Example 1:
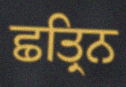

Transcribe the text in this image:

ਛਤ੍ਰਿਨ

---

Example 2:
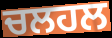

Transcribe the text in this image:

ਚਲਹਲ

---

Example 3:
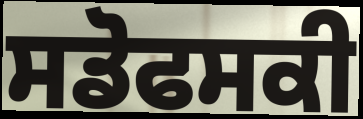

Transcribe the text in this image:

ਸਡੋਫਸਕੀ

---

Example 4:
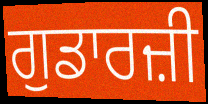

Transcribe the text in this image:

ਗੁਡਾਰਜ਼ੀ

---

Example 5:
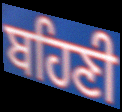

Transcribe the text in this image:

ਬਹਿਣੀ